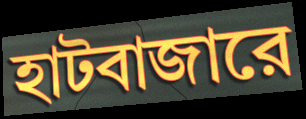
হাটবাজারে